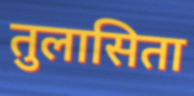
तुलासिता